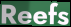
Reefs